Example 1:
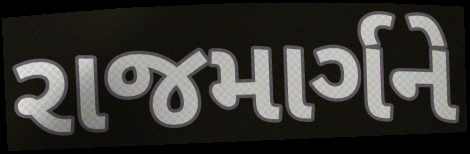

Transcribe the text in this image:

રાજમાર્ગને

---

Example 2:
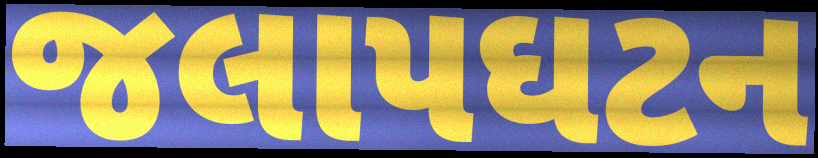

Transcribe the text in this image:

જલાપઘટન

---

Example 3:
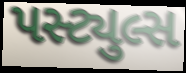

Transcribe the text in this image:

પસ્ટ્યુલ્સ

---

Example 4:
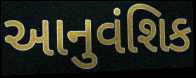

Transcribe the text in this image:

આનુવંશિક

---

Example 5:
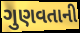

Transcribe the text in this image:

ગુણવતાની